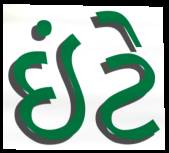
ઇંટે